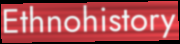
Ethnohistory